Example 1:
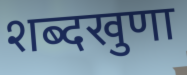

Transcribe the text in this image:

शब्दखुणा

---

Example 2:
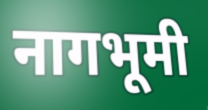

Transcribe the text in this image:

नागभूमी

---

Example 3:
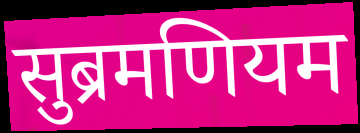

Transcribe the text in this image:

सुब्रमणियम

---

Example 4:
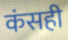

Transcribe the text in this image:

कंसही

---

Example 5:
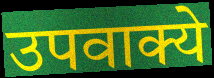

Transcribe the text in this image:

उपवाक्ये